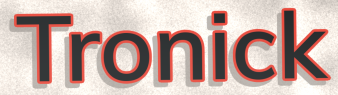
Tronick